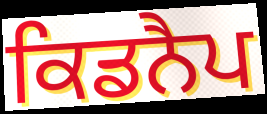
ਕਿਡਨੈਪ